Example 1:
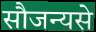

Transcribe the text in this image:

सौजन्यसे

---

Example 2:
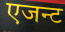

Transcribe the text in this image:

एजन्ट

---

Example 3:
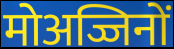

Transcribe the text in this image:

मोअज्जिनों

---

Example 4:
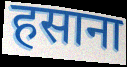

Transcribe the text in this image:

हसाना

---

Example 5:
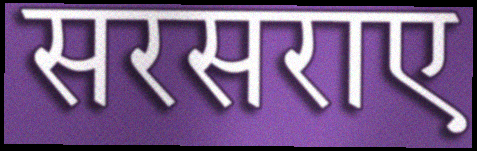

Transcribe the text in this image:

सरसराए